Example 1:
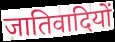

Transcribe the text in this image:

जातिवादियों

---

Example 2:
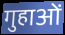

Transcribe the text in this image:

गुहाओं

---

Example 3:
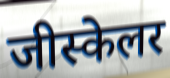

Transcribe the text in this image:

जीस्केलर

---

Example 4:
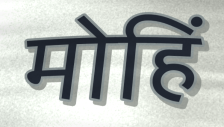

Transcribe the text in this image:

मोहिं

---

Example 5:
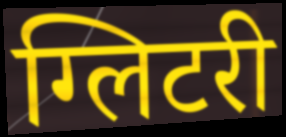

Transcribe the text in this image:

ग्लिटरी